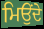
ਮਿਉਂਦੇ